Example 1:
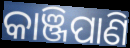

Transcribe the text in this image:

କାଞ୍ଜିପାଣି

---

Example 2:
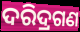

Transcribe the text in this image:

ଦରିଦ୍ରଗଣ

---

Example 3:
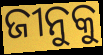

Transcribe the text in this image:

ଜୀନୁକୁ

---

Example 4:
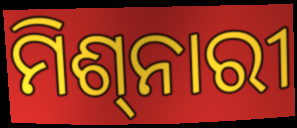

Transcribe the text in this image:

ମିଶ୍‍ନାରୀ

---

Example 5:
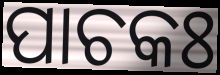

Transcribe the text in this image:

ପାଚକଃ